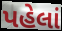
પહેલાં